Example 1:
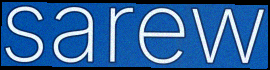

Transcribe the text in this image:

sarew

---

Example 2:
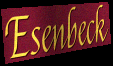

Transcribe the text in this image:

Esenbeck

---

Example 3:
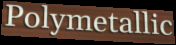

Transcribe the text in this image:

Polymetallic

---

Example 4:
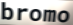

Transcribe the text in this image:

bromo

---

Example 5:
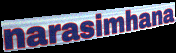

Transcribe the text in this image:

narasimhana